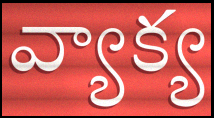
వ్యాక్య